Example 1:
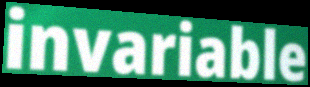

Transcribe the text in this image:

invariable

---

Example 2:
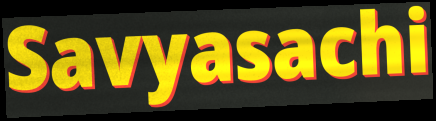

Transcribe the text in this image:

Savyasachi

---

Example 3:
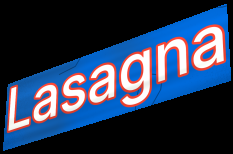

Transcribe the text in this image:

Lasagna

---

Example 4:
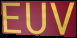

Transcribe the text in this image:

EUV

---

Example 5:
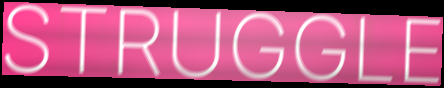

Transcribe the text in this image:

STRUGGLE